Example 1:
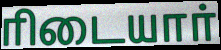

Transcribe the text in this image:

ரிடையார்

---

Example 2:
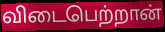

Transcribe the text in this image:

விடைபெற்றான்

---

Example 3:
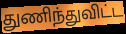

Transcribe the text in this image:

துணிந்துவிட்ட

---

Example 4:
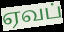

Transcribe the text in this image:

ஏவப்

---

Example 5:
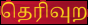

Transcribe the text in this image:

தெரிவுற